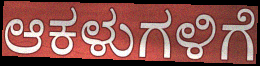
ಆಕಳುಗಳಿಗೆ